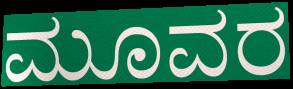
ಮೂವರ